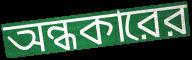
অন্ধকারের